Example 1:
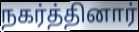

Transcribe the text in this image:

நகர்த்தினார்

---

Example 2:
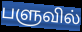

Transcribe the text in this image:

பளுவில்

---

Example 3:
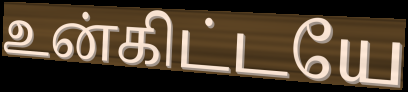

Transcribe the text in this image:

உன்கிட்டயே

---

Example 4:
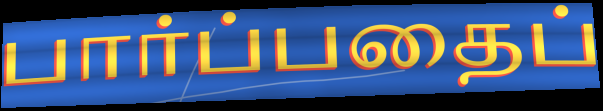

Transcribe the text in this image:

பார்ப்பதைப்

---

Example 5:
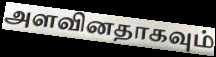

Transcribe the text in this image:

அளவினதாகவும்